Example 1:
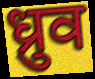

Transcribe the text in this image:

ध्रुव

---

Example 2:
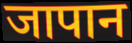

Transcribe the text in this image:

जापान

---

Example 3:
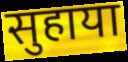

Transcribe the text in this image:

सुहाया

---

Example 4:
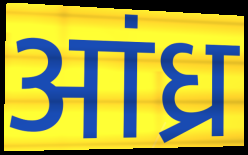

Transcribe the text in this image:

आंध्र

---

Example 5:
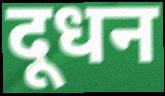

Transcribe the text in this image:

दूधन